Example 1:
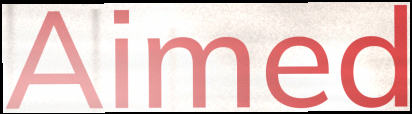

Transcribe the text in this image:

Aimed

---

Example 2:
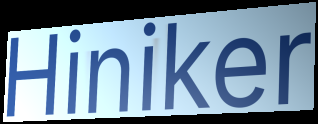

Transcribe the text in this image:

Hiniker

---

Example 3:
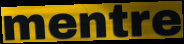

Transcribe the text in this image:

mentre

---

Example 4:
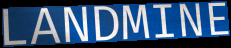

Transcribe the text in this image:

LANDMINE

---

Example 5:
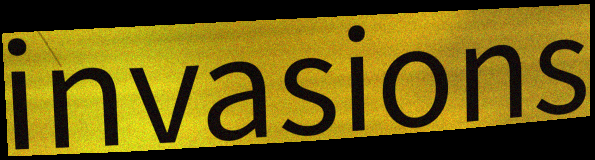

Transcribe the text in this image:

invasions